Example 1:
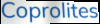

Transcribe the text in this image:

Coprolites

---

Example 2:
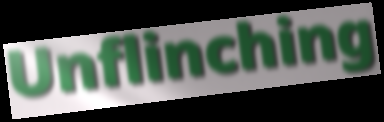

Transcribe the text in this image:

Unflinching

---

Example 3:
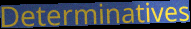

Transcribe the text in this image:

Determinatives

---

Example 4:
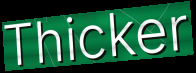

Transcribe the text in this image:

Thicker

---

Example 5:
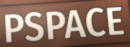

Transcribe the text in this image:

PSPACE